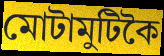
মোটামুটিকৈ